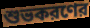
শুভকরণের